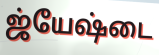
ஜ்யேஷ்டை